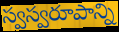
స్వస్వరూపాన్ని